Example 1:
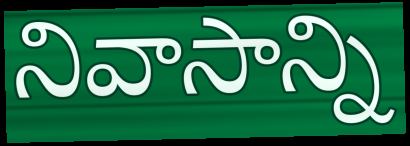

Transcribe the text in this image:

నివాసాన్ని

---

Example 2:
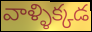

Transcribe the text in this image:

వాళ్ళిక్కడ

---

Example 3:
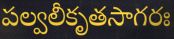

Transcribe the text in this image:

పల్వలీకృతసాగరః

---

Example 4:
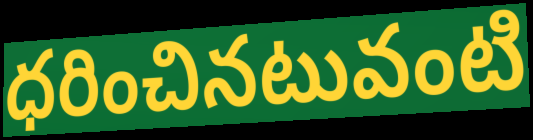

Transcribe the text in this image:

ధరించినటువంటి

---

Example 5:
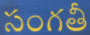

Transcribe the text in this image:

సంగతీ